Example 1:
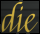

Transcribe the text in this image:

die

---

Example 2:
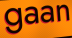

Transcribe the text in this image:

gaan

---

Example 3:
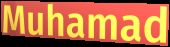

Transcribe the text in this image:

Muhamad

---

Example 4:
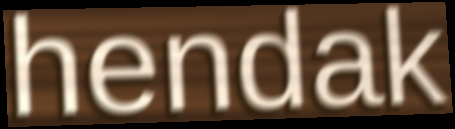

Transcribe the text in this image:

hendak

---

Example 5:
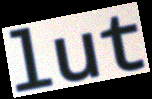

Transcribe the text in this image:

lut